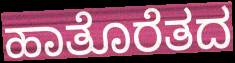
ಹಾತೊರೆತದ